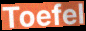
Toefel